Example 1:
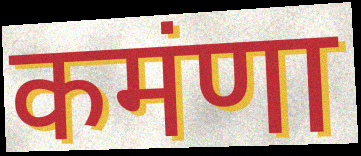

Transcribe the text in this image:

कमंणा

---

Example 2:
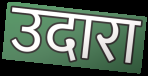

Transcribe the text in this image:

उदारा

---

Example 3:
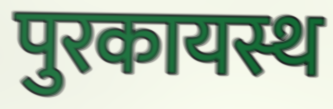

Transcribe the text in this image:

पुरकायस्थ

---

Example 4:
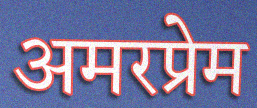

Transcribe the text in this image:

अमरप्रेम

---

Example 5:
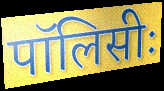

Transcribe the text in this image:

पॉलिसीः